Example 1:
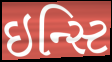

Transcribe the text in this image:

ઇન્સ્ટિ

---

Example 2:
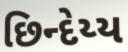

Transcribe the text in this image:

છિન્દેય્ય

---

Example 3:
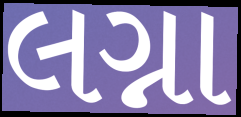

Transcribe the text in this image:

લગ્ના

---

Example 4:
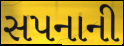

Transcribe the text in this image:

સપનાની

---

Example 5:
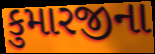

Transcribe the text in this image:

કુમારજીના